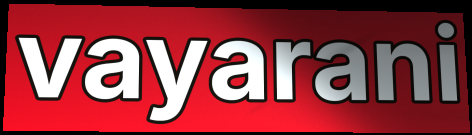
vayarani